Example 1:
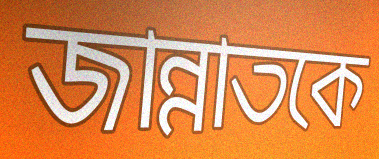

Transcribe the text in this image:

জান্নাতকে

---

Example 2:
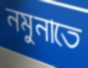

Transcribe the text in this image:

নমুনাতে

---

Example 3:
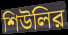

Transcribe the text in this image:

শিউলির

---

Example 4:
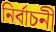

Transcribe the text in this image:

নির্বাচনী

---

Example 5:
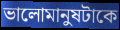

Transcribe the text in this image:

ভালোমানুষটাকে